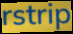
rstrip